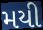
મયી